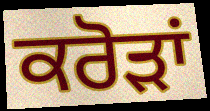
ਕਰੋੜਾਂ